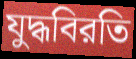
যুদ্ধবিরতি